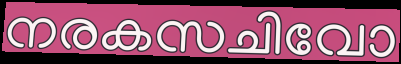
നരകസചിവോ